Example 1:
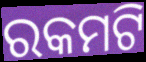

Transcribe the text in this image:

ରକମଟି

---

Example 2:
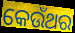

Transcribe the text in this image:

କେଉଁଥର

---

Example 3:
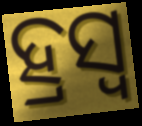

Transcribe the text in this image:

ହ୍ରସ୍ୱ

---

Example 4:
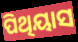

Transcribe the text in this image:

ପିଥିୟାସ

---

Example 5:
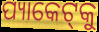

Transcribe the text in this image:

ପ୍ୟାକେଟ୍‌କୁ